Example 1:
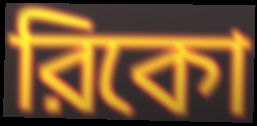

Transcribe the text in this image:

রিকো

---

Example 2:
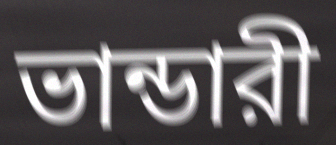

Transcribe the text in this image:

ভান্ডারী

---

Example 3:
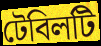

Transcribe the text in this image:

টেবিলটি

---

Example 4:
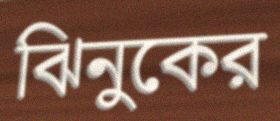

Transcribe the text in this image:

ঝিনুকের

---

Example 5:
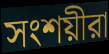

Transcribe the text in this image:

সংশয়ীরা